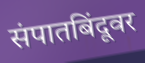
संपातबिंदूवर